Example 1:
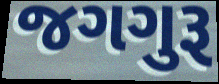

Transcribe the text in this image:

જગગુરૂ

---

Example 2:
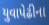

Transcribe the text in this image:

યુવાપેઢીના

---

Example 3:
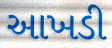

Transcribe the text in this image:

આખડી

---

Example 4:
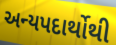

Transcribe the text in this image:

અન્યપદાર્થોથી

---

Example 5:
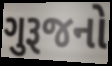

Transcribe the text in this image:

ગુરૂજનો